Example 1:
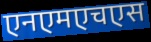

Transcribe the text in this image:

एनएमएचएस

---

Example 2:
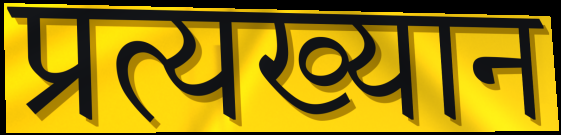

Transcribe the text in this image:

प्रत्यख्यान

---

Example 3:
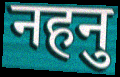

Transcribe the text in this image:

नहनु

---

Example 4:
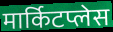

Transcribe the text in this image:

मार्किटप्लेस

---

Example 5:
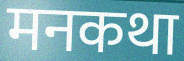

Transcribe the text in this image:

मनकथा